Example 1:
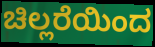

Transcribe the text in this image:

ಚಿಲ್ಲರೆಯಿಂದ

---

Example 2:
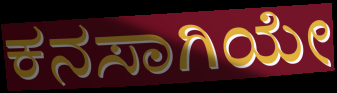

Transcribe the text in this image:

ಕನಸಾಗಿಯೇ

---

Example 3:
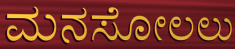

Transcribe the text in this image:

ಮನಸೋಲಲು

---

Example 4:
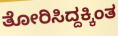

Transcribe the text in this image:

ತೋರಿಸಿದ್ದಕ್ಕಿಂತ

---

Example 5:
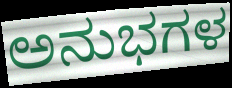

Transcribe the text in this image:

ಅನುಭಗಳ